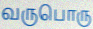
வருபொரு